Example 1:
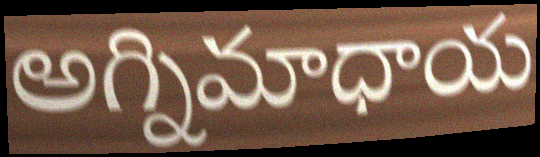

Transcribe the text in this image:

అగ్నిమాధాయ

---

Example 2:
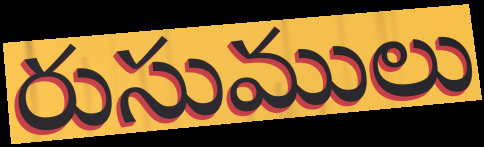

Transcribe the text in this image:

రుసుములు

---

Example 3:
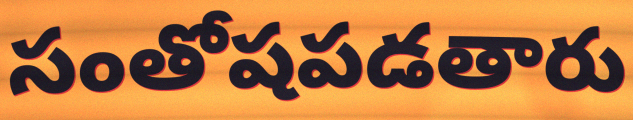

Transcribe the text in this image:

సంతోషపడతారు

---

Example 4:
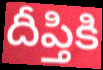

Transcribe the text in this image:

దీప్తికి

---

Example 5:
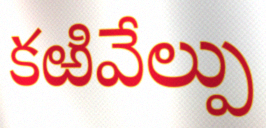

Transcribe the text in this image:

కఱివేల్పు